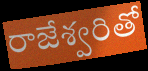
రాజేశ్వరితో